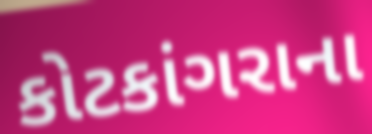
કોટકાંગરાના